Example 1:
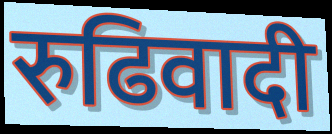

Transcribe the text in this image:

रुढिवादी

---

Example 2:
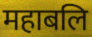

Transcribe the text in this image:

महाबलि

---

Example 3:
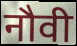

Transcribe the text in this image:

नौवी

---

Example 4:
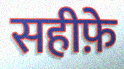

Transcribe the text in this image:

सहीफ़े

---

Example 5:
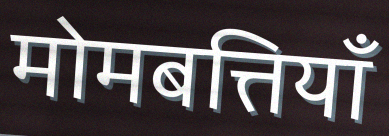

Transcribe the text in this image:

मोमबत्तियाँ